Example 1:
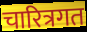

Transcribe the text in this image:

चारित्रगत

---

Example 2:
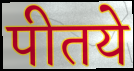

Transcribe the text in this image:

पीतये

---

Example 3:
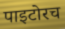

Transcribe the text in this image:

पाइटोरच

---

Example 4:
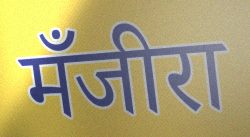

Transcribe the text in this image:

मँजीरा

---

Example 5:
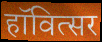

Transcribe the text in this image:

हॉवित्सर